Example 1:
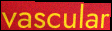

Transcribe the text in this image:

vascular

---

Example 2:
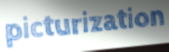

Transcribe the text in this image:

picturization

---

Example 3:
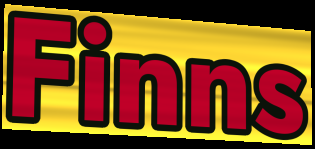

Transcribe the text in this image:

Finns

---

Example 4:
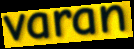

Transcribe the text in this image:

varan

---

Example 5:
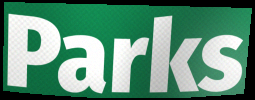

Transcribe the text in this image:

Parks